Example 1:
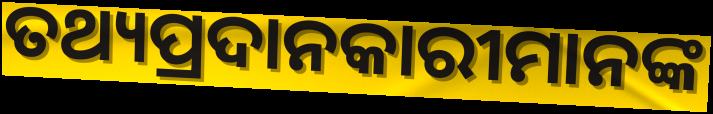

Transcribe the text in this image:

ତଥ୍ୟପ୍ରଦାନକାରୀମାନଙ୍କ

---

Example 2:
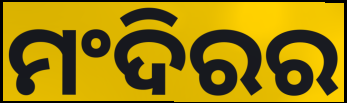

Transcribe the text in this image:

ମଂଦିରର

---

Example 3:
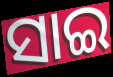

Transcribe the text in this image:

ସାଇ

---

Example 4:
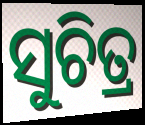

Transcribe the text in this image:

ସୁଚିତ୍ର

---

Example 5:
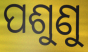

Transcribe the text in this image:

ପଶୁଣୁ